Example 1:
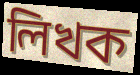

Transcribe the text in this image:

লিখক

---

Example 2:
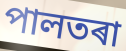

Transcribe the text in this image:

পালতৰা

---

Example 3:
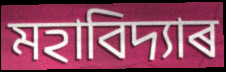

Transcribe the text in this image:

মহাবিদ্যাৰ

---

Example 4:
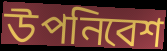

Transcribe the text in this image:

উপনিবেশ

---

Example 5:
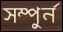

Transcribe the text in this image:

সম্পুৰ্ন